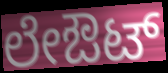
ಲೇಔಟ್